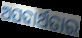
ଅପଦାର୍ଥତାର